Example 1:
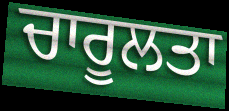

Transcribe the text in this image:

ਚਾਰੂਲਤਾ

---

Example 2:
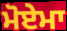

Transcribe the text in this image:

ਮੋਏਮਾ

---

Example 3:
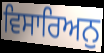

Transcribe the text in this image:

ਵਿਸਾਰਿਅਨੁ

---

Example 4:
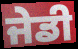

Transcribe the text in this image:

ਜੇਡੀ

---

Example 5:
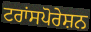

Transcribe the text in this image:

ਟਰਾਂਸਪੋਰੇਸ਼ਨ